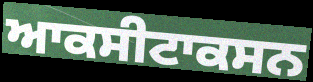
ਆਕਸੀਟਾਕਸਨ